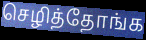
செழித்தோங்க